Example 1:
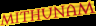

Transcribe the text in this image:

MITHUNAM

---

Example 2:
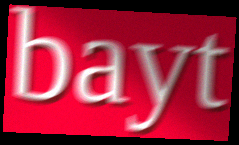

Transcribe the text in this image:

bayt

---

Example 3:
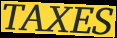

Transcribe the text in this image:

TAXES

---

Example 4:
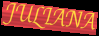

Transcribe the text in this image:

JULIANA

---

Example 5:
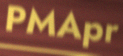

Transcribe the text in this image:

PMApr